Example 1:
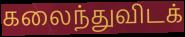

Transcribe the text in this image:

கலைந்துவிடக்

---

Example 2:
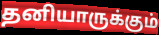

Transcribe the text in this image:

தனியாருக்கும்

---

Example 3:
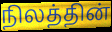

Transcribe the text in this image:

நிலத்தின்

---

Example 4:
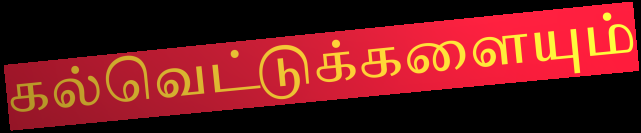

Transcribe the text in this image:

கல்வெட்டுக்களையும்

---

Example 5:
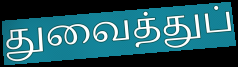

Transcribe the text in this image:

துவைத்துப்